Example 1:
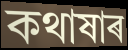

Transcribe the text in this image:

কথাষাৰ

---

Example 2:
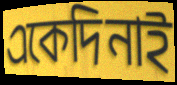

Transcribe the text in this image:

একেদিনাই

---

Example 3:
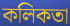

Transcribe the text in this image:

কলিকতা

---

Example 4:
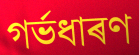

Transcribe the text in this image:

গৰ্ভধাৰণ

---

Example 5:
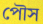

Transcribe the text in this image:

পৌস